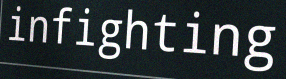
infighting